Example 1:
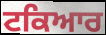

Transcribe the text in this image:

ਟਕਿਆਰ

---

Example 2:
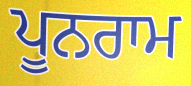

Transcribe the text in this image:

ਪੂਨਰਾਮ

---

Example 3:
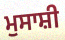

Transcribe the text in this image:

ਮੁਸਾਸ਼ੀ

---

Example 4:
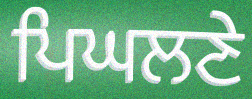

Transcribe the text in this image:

ਪਿਘਲਣੇ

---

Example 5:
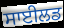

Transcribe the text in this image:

ਸਾਈਲਡ